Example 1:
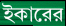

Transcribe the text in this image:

ইকারের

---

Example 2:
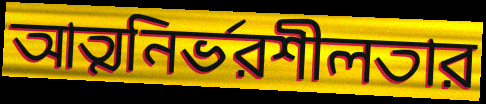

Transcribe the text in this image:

আত্মনির্ভরশীলতার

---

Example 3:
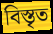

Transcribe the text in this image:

বিস্তৃত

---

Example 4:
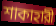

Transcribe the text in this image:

শাকাহারী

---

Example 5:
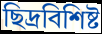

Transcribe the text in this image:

ছিদ্রবিশিষ্ট